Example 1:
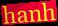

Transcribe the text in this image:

hanh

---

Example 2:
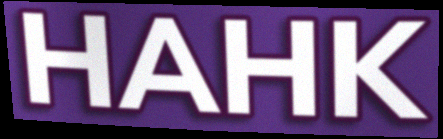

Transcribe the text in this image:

HAHK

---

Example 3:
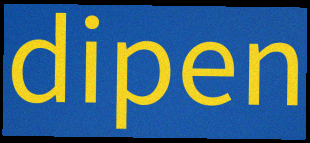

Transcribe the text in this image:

dipen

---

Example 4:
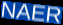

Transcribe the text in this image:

NAER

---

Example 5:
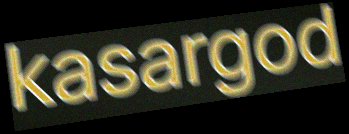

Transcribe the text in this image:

kasargod